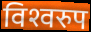
विश्वरुप